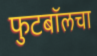
फुटबॉलचा